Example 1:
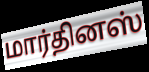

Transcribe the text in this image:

மார்தினஸ்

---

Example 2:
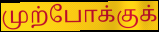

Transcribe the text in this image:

முற்போக்குக்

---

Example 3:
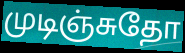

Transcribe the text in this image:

முடிஞ்சுதோ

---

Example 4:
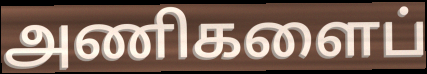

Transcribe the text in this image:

அணிகளைப்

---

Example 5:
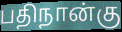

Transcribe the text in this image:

பதிநான்கு